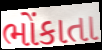
ભોંકાતા